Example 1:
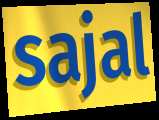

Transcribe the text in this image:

sajal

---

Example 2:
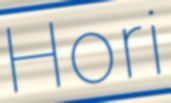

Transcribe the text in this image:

Hori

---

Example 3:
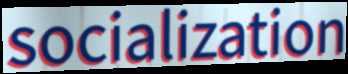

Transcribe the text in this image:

socialization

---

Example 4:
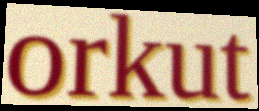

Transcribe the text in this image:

orkut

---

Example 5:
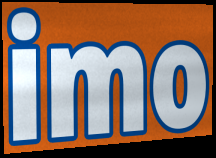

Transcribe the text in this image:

imo